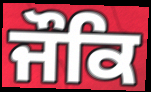
ਜੌਕਿ